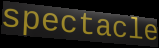
spectacle